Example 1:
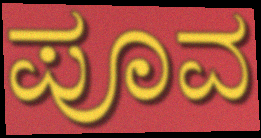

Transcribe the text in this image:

ಪೂವ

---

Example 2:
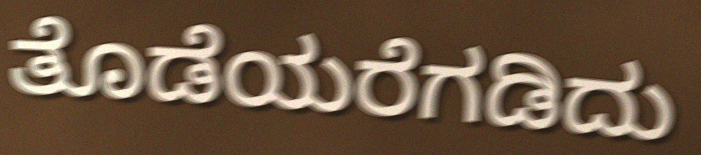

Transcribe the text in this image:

ತೊಡೆಯರೆಗಡಿದು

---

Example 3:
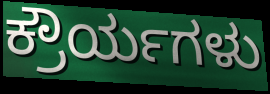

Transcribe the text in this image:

ಕ್ರೌರ್ಯಗಳು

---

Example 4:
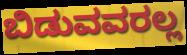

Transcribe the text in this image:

ಬಿಡುವವರಲ್ಲ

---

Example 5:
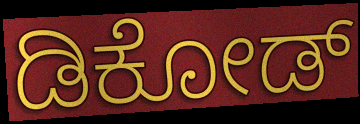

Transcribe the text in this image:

ಡಿಕೋಡ್